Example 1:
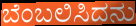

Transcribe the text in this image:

ಬೆಂಬಲಿಸಿದನು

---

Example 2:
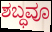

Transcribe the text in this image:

ಶಬ್ಧವೂ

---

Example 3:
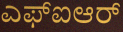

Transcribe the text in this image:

ಎಫ್ಐಆರ್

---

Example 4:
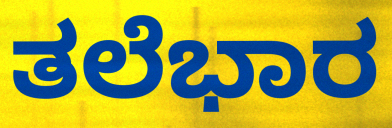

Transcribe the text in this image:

ತಲೆಭಾರ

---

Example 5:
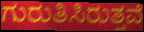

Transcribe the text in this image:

ಗುರುತಿಸಿರುತ್ತವೆ